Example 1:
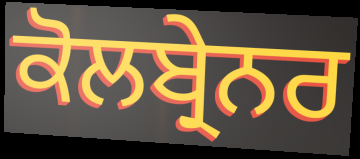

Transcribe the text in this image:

ਕੋਲਬ੍ਰੇਨਰ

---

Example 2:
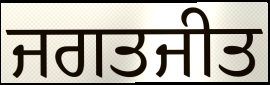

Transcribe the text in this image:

ਜਗਤਜੀਤ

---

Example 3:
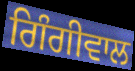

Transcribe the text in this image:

ਗਿੰਗੀਵਾਲ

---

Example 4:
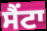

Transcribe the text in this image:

ਸੈਂਟਾ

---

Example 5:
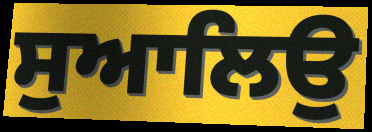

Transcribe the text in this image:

ਸੁਆਲਿਉ